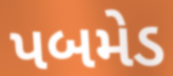
પબમેડ